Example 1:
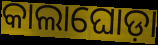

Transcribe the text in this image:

କାଲାଘୋଡ଼ା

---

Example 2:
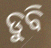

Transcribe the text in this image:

ଡୁବି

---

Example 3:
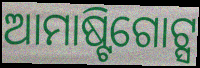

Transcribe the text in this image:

ଆମାଷ୍ଟିଗୋଟ୍ସ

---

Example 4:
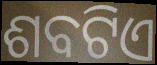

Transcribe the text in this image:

ଶବଟିଏ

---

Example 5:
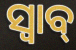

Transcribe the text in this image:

ସ୍ବାବ୍